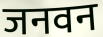
जनवन